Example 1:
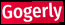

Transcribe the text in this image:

Gogerly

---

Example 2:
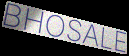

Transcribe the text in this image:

BHOSALE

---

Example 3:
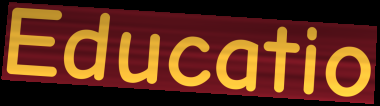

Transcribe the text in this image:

Educatio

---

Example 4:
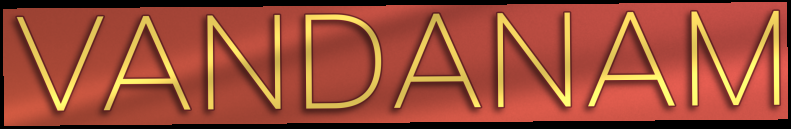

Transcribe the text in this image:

VANDANAM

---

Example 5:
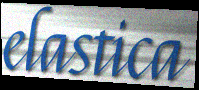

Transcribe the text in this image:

elastica